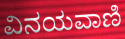
ವಿನಯವಾಣಿ